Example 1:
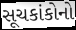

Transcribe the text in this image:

સૂચકાંકોનો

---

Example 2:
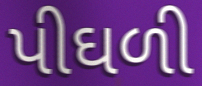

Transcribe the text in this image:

પીઘળી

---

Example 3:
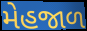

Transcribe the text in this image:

મેહજાળ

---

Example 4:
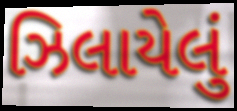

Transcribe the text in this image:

ઝિલાયેલું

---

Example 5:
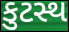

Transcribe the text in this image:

કુટસ્થ